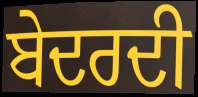
ਬੇਦਰਦੀ